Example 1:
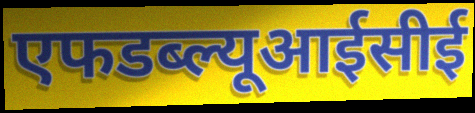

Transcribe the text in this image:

एफडब्ल्यूआईसीई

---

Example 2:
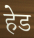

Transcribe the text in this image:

हेड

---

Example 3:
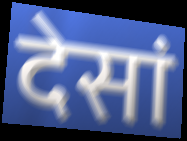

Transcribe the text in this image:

देसां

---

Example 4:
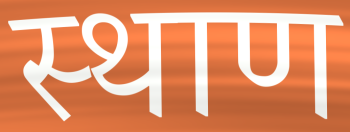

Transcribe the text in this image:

स्थाण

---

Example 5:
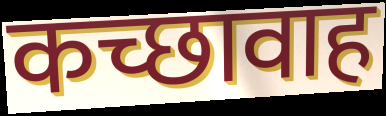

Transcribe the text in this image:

कच्छावाह